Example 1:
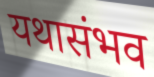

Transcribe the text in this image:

यथासंभव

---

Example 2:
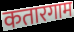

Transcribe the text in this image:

कतारगाम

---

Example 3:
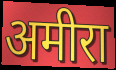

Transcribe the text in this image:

अमीरा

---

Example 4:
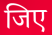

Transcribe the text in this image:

जिए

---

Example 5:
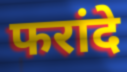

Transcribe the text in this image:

फरांदे